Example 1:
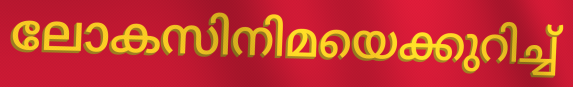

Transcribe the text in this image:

ലോകസിനിമയെക്കുറിച്ച്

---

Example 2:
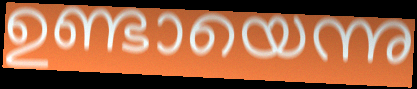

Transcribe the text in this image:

ഉണ്ടായെന്നു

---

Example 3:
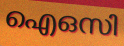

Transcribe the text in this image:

ഐഒസി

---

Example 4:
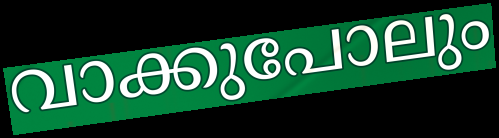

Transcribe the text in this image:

വാക്കുപോലും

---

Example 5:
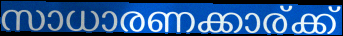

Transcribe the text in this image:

സാധാരണക്കാര്ക്ക്